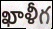
ఖాళీగ